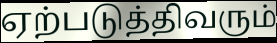
ஏற்படுத்திவரும்